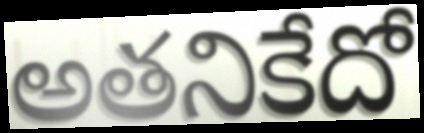
అతనికేదో